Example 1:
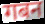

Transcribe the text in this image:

गबन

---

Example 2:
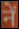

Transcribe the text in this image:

नें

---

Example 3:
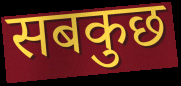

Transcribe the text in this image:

सबकुछ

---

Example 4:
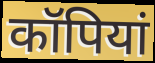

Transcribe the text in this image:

कॉपियां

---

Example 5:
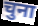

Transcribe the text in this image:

चुना